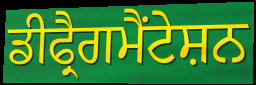
ਡੀਫ੍ਰੈਗਮੈਂਟੇਸ਼ਨ